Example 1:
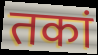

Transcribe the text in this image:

तकां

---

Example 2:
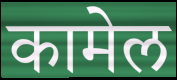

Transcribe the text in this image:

कामेल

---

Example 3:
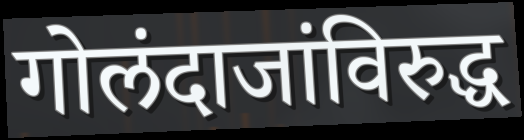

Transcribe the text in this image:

गोलंदाजांविरुद्ध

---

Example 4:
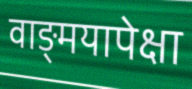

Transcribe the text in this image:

वाङ्मयापेक्षा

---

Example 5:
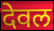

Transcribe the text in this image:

देवल